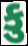
કુ